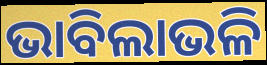
ଭାବିଲାଭଳି